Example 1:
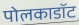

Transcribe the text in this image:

पोलकाडॉट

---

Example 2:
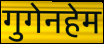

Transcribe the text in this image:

गुगेनहेम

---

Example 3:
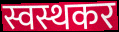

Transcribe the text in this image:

स्वस्थकर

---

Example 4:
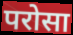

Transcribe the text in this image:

परोसा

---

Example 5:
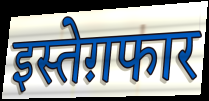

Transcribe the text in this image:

इस्तेग़फार